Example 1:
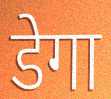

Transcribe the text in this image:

डेगा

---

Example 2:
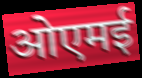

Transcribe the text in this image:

ओएमई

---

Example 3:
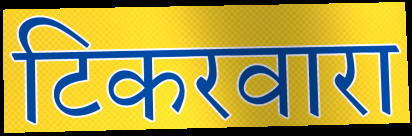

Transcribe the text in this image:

टिकरवारा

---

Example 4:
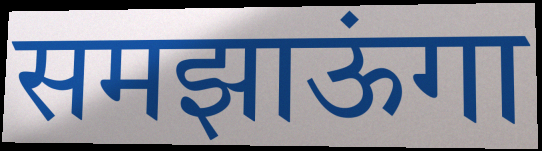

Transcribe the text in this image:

समझाऊंगा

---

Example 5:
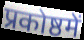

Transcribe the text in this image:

प्रकोष्ठमें